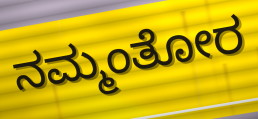
ನಮ್ಮಂತೋರ